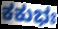
ಕಕುಭಃ